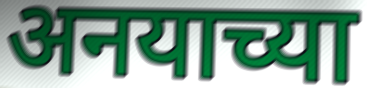
अनयाच्या